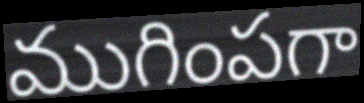
ముగింపగా